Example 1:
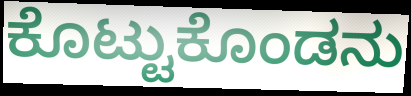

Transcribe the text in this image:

ಕೊಟ್ಟುಕೊಂಡನು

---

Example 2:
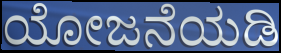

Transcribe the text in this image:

ಯೋಜನೆಯಡಿ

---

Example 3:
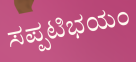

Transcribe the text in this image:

ಸಪ್ಪಟಿಭಯಂ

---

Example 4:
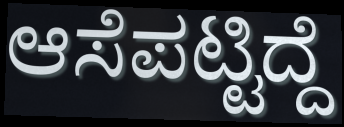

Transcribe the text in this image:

ಆಸೆಪಟ್ಟಿದ್ದೆ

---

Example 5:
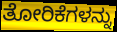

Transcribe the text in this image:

ತೋರಿಕೆಗಳನ್ನು